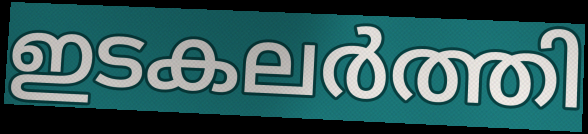
ഇടകലർത്തി